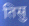
तिसु